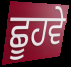
ਛੂਹਵੇ